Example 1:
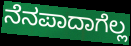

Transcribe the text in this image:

ನೆನಪಾದಾಗೆಲ್ಲ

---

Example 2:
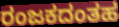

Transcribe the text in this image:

ರಂಜಕದಂತಹ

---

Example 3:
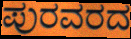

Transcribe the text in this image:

ಪುರವರದ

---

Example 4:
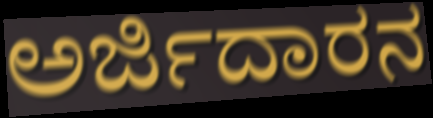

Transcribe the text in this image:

ಅರ್ಜಿದಾರನ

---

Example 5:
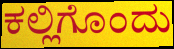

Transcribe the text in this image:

ಕಲ್ಲಿಗೊಂದು